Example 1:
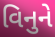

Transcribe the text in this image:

વિનુને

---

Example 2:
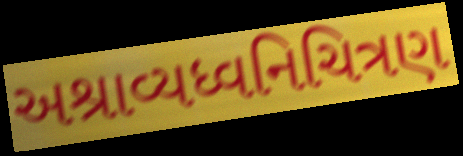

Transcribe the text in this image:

અશ્રાવ્યધ્વનિચિત્રણ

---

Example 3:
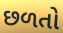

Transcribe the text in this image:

છળતો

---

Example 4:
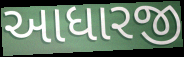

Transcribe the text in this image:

આધારજી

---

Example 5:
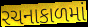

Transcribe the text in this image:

રચનાકાળમાં